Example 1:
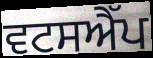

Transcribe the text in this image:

ਵਟਸਐੱਪ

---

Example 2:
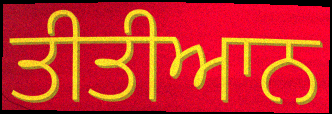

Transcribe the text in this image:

ਤੀਤੀਆਨ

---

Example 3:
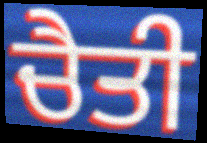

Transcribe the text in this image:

ਚੈਤੀ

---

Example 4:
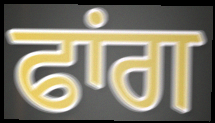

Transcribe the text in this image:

ਫਾਂਗ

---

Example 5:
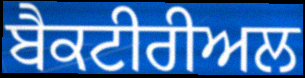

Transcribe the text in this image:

ਬੈਕਟੀਰੀਅਲ